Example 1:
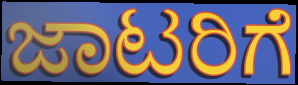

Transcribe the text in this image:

ಜಾಟರಿಗೆ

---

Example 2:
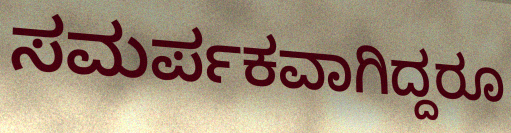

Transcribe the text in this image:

ಸಮರ್ಪಕವಾಗಿದ್ದರೂ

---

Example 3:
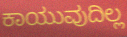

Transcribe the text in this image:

ಕಾಯುವುದಿಲ್ಲ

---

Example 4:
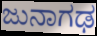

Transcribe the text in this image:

ಜುನಾಗಢ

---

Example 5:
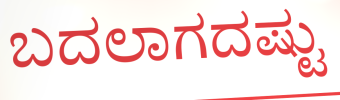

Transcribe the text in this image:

ಬದಲಾಗದಷ್ಟು